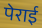
पेराई